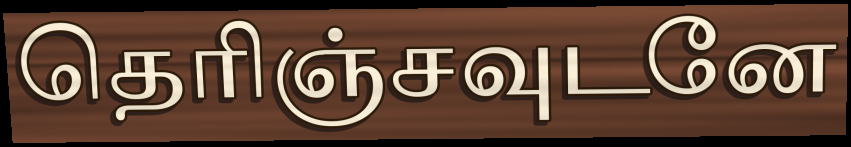
தெரிஞ்சவுடனே